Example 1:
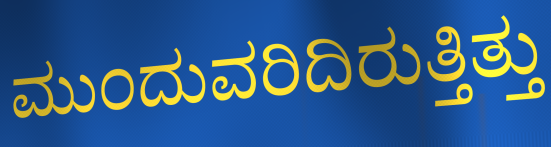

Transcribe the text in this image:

ಮುಂದುವರಿದಿರುತ್ತಿತ್ತು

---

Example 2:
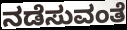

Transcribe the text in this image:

ನಡೆಸುವಂತೆ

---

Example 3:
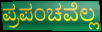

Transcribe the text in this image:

ಪ್ರಪಂಚವೆಲ್ಲ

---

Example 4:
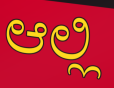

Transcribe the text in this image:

ಆಲ್ಲಿ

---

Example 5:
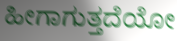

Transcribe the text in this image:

ಹೀಗಾಗುತ್ತದೆಯೋ